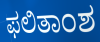
ಫಲಿತಾಂಶ